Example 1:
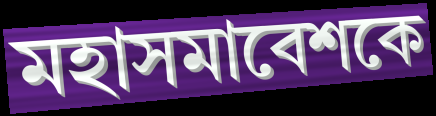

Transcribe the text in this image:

মহাসমাবেশকে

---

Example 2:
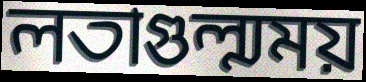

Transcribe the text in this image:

লতাগুল্মময়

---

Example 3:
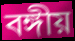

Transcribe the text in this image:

বঙ্গীয়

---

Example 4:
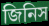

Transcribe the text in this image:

জিনিস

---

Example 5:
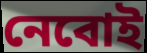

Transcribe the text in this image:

নেবোই